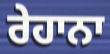
ਰੇਹਾਨਾ